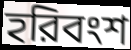
হরিবংশ